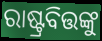
ରାଷ୍ଟ୍ରବିତ୍ତଙ୍କୁ